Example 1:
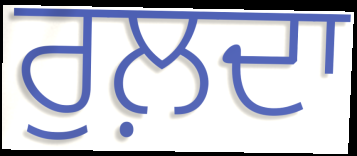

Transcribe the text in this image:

ਰੁਲ਼ਦਾ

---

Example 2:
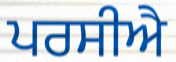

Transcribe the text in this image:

ਪਰਸੀਐ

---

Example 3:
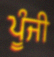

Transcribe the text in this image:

ਪੂੰਜੀ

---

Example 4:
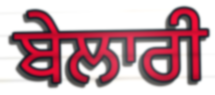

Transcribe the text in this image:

ਬੇਲਾਰੀ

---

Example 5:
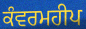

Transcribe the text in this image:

ਕੰਵਰਮਹੀਪ